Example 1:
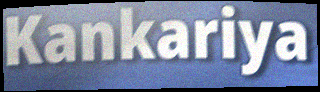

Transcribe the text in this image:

Kankariya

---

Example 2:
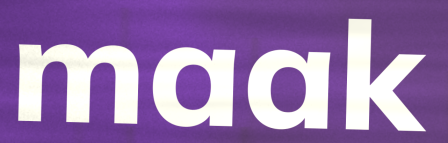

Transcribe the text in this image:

maak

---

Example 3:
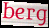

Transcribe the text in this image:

berg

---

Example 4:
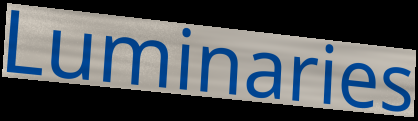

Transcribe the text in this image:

Luminaries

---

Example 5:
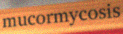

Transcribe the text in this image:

mucormycosis